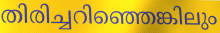
തിരിച്ചറിഞ്ഞെങ്കിലും